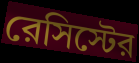
রেসিস্টের